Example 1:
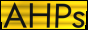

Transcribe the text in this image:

AHPs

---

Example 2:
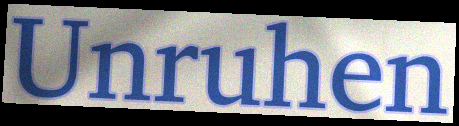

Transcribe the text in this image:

Unruhen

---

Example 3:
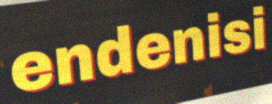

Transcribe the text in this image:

endenisi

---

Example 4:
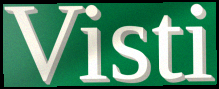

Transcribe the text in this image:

Visti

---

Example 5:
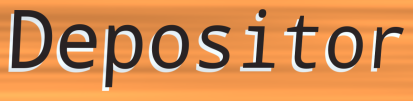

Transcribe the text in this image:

Depositor